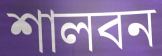
শালবন